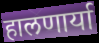
हालणार्या